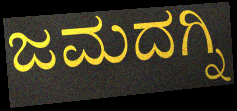
ಜಮದಗ್ನಿ